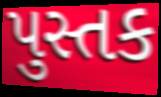
પુસ્તક